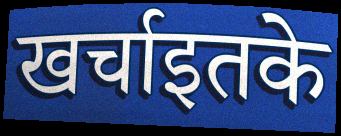
खर्चाइतके